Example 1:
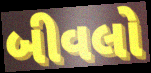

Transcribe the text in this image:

બીવલો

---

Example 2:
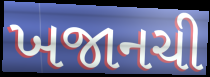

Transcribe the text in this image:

ખજાનચી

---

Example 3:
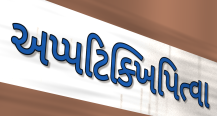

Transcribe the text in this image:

અપ્પટિક્ખિપિત્વા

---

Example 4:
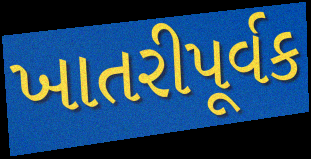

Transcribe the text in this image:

ખાતરીપૂર્વક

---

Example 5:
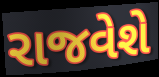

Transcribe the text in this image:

રાજવેશે